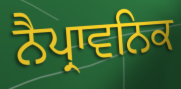
ਨੈਪ੍ਰਾਵਨਿਕ